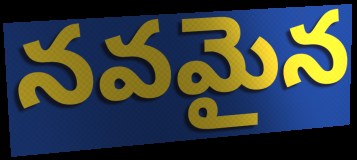
నవమైన